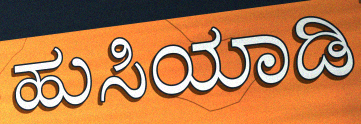
ಹುಸಿಯಾಡಿ